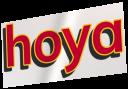
hoya